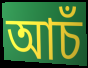
আচঁ